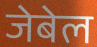
जेबेल